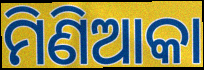
ମିଣିଆକା